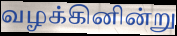
வழக்கினின்று